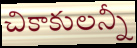
చికాకులన్నీ